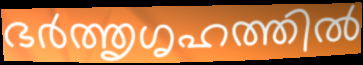
ഭർത്തൃഗൃഹത്തിൽ